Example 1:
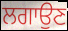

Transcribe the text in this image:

ਲਗਾਉਣ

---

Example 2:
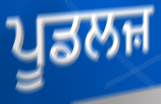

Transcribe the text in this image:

ਪੂਡਲਜ਼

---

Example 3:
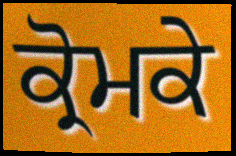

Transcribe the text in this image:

ਕ੍ਰੋਮਕੇ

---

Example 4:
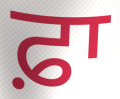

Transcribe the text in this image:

ਫ਼ਾ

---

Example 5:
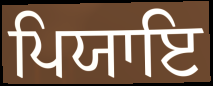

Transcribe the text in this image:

ਪਿਯਾਇ